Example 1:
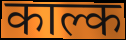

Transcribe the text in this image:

काल्क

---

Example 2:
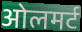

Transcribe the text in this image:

ओलमर्ट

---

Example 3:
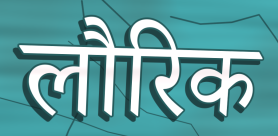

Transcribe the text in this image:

लौरिक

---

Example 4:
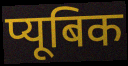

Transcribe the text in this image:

प्यूबिक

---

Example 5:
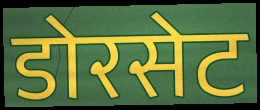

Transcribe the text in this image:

डोरसेट